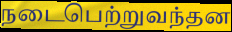
நடைபெற்றுவந்தன